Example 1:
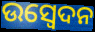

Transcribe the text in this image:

ଉସ୍ୱେଦନ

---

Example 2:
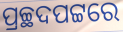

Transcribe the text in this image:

ପ୍ରଚ୍ଛଦପଟ୍ଟରେ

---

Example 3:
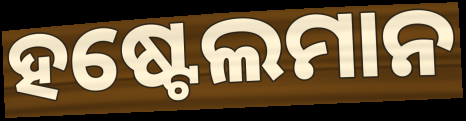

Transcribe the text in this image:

ହଷ୍ଟେଲମାନ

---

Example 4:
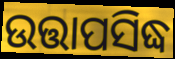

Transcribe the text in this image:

ଉତ୍ତାପସିଦ୍ଧ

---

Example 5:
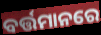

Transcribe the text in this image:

ବର୍ତ୍ତମାନରେ